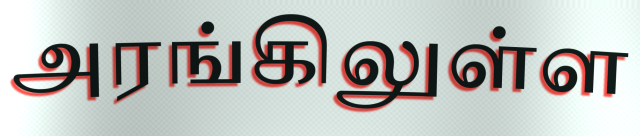
அரங்கிலுள்ள